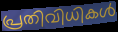
പ്രതിവിധികൾ